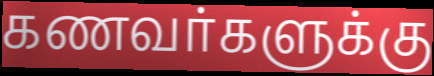
கணவர்களுக்கு